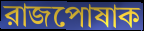
রাজপোষাক